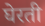
घेरती